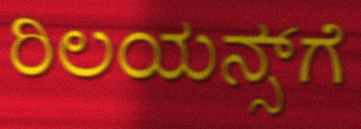
ರಿಲಯನ್ಸ್‌ಗೆ